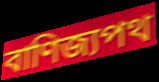
বাণিজ্যপথ